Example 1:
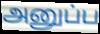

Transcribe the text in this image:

அனுப்ப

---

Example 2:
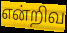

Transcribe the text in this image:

என்றிவ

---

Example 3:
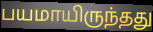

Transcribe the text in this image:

பயமாயிருந்தது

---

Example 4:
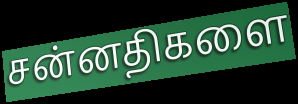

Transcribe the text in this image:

சன்னதிகளை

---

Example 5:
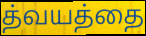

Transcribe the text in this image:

த்வயத்தை